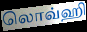
லொவ்ஹி